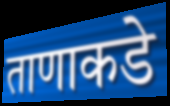
ताणाकडे